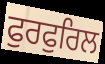
ਫੁਰਫੁਰਿਲ